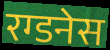
रग्डनेस